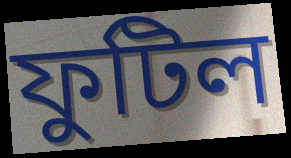
ফুটিল